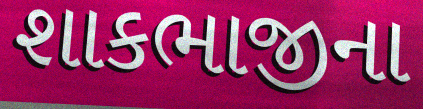
શાકભાજીના